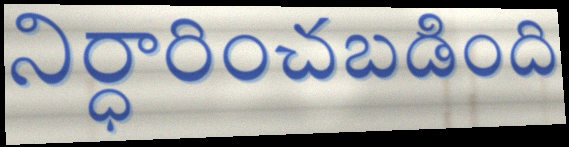
నిర్ధారించబడింది